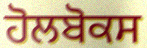
ਹੋਲਬੋਕਸ